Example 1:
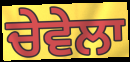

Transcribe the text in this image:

ਚੇਵੇਲਾ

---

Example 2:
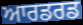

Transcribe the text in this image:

ਆਰਡਰਡ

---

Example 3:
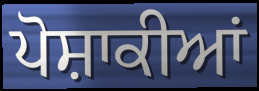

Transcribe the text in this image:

ਪੋਸ਼ਾਕੀਆਂ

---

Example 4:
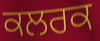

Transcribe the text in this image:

ਕਲਰਕ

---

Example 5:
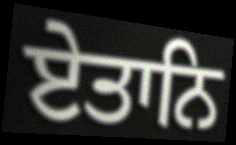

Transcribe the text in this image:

ਏਤਾਨਿ